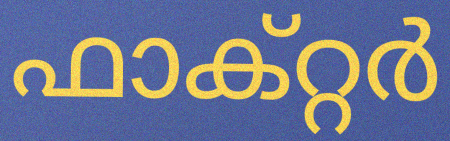
ഫാക്റ്റർ